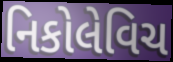
નિકોલેવિચ